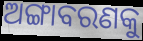
ଅଙ୍ଗାବରଣକୁ